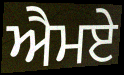
ਐਮਏ